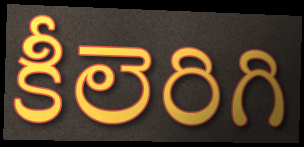
కీలెరిగి